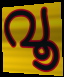
വൂ